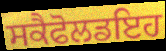
ਸਕੈਫੋਲਡਇਹ